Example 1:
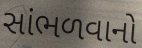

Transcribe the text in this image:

સાંભળવાનો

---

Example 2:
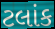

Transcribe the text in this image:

ટલાંક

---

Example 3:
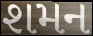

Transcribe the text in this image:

શમન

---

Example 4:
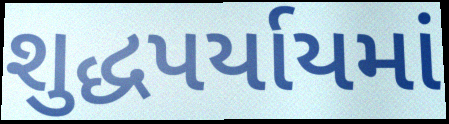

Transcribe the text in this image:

શુદ્ધપર્યાયમાં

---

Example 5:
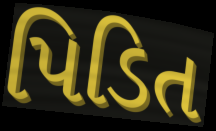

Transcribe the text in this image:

પિડિત